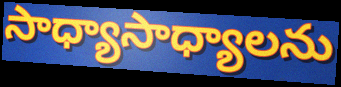
సాధ్యాసాధ్యాలను